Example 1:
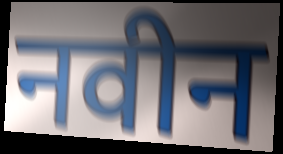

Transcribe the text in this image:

नवीन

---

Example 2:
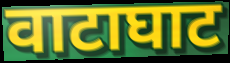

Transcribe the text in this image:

वाटाघाट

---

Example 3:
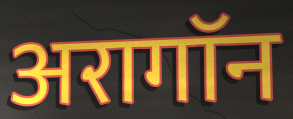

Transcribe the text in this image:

अरागॉन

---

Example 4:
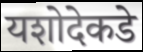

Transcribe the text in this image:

यशोदेकडे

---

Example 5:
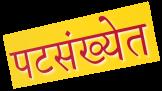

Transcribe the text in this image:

पटसंख्येत